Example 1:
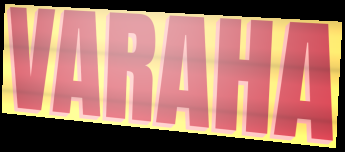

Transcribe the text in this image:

VARAHA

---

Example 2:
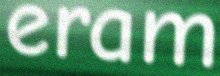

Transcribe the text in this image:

eram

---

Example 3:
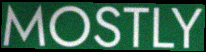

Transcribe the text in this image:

MOSTLY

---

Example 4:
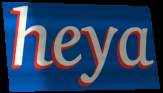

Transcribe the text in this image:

heya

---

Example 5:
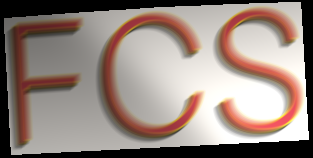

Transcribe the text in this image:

FCS